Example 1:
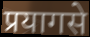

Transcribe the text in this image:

प्रयागसे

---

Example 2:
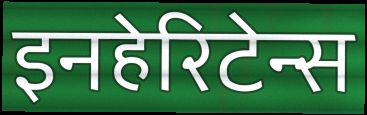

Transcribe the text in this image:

इनहेरिटेन्स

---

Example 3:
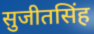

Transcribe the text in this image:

सुजीतसिंह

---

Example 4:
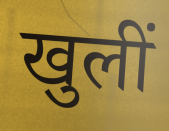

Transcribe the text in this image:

खुलीं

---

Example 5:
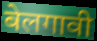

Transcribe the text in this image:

बेलगावी